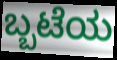
ಬ್ಬಟೆಯ